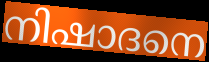
നിഷാദനെ